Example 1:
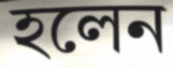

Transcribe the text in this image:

হলেন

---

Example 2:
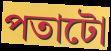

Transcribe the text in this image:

পতাটো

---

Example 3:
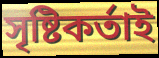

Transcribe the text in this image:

সৃষ্টিকৰ্তাই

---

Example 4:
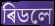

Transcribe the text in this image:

ৰিডলে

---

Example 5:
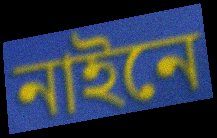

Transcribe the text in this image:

নাইনে